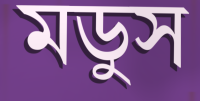
মডুস